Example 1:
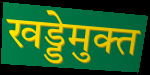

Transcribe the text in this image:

खड्डेमुक्त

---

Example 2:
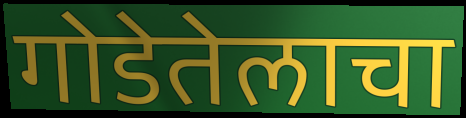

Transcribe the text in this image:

गोडेतेलाचा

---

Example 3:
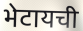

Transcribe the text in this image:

भेटायची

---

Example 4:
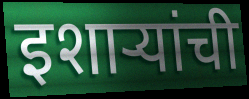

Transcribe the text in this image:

इशाऱ्यांची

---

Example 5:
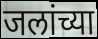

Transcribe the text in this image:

जलांच्या